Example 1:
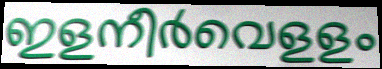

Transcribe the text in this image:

ഇളനീർവെളളം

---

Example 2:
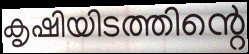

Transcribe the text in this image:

കൃഷിയിടത്തിന്റെ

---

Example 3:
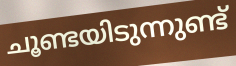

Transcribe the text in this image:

ചൂണ്ടയിടുന്നുണ്ട്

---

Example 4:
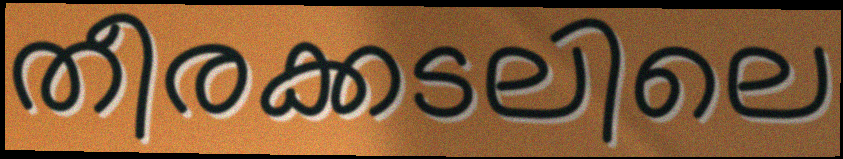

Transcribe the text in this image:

തീരക്കടലിലെ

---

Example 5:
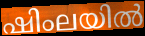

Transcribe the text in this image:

ഷിംലയിൽ